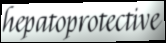
hepatoprotective